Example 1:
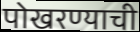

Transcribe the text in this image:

पोखरण्याची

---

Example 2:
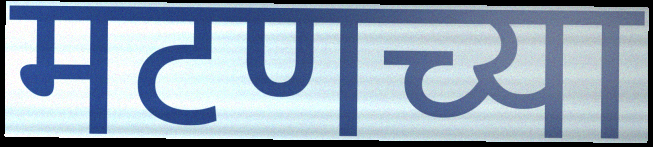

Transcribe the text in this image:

मटणच्या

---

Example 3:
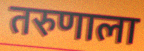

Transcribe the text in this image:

तरुणाला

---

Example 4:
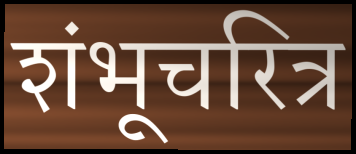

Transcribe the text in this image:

शंभूचरित्र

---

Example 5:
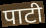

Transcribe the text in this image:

पाटी